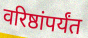
वरिष्ठांपर्यंत